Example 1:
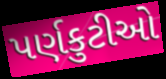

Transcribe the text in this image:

પર્ણકુટીઓ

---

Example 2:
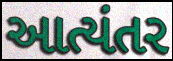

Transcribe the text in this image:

આત્યંતર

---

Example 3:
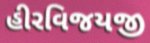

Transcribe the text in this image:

હીરવિજયજી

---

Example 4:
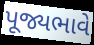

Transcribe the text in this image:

પૂજ્યભાવે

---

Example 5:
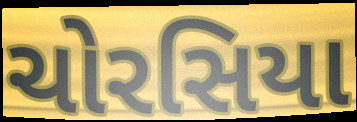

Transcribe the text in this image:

ચોરસિયા